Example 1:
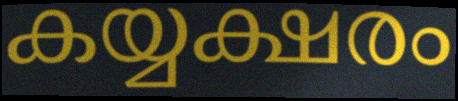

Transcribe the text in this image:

കയ്യക്ഷരം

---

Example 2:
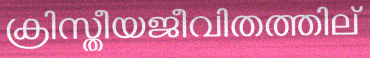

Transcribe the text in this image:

ക്രിസ്തീയജീവിതത്തില്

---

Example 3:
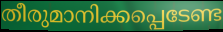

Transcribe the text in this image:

തീരുമാനിക്കപ്പെടേണ്ട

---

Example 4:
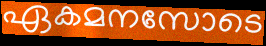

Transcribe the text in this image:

ഏകമനസോടെ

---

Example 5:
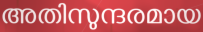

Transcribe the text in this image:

അതിസുന്ദരമായ